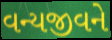
વન્યજીવને